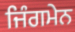
ਜਿੰਗਮੇਨ